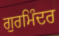
ਗੁਰਮਿੰਦਰ